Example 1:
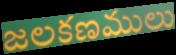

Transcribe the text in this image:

జలకణములు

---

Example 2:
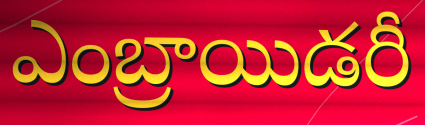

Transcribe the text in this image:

ఎంబ్రాయిడరీ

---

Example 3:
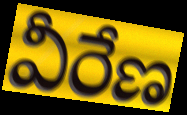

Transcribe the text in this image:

వీరేణ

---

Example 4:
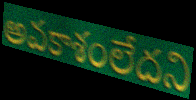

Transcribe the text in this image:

అవకాశంలేదని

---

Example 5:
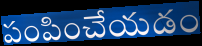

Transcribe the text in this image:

పంపించేయడం